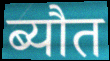
ब्यौत